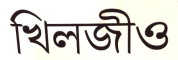
খিলজীও